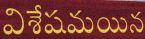
విశేషమయిన